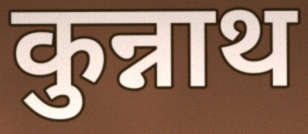
कुन्नाथ